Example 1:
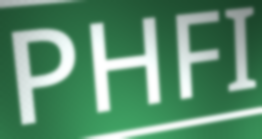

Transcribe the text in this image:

PHFI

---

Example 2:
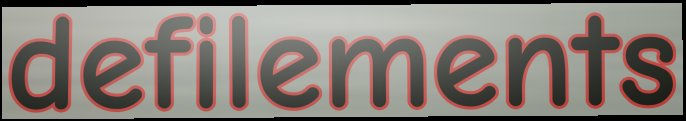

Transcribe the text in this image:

defilements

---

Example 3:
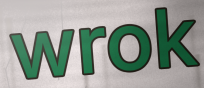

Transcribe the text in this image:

wrok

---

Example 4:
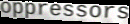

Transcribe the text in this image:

oppressors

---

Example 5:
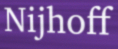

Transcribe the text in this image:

Nijhoff